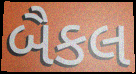
બૈકલ